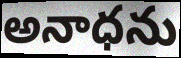
అనాధను